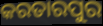
କରତାରପୁର